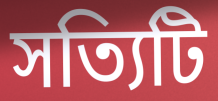
সত্যিটি